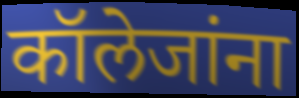
कॉलेजांना